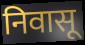
निवासू